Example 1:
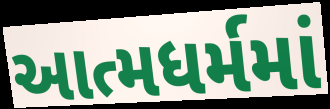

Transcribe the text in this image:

આત્મધર્મમાં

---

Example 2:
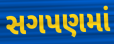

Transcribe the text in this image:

સગપણમાં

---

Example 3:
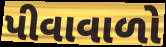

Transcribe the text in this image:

પીવાવાળો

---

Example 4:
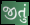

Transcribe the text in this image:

જીતું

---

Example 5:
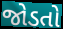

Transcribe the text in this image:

જોડતો